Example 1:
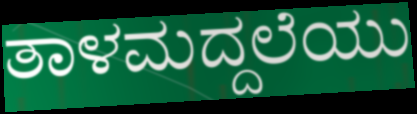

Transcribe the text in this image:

ತಾಳಮದ್ದಲೆಯು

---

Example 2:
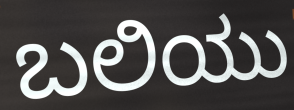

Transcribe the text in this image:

ಬಲಿಯು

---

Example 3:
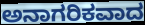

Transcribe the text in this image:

ಅನಾಗರಿಕವಾದ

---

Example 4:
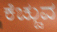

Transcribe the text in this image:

ಕೆಚ್ಚುವ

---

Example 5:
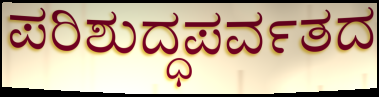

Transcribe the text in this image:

ಪರಿಶುದ್ಧಪರ್ವತದ